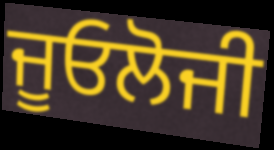
ਜੂਓਲੋਜੀ